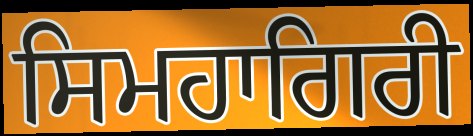
ਸਿਮਹਾਗਿਰੀ